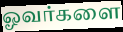
ஓவர்களை